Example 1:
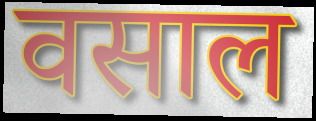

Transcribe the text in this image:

वसाल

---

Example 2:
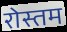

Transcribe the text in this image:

रोस्तम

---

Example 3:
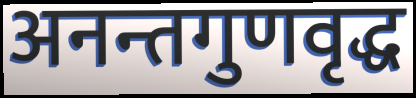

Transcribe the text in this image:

अनन्तगुणवृद्ध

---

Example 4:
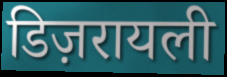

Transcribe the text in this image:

डिज़रायली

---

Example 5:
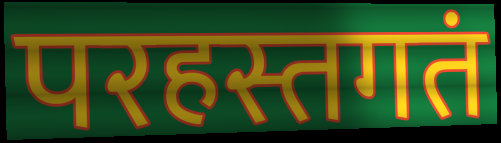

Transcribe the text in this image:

परहस्तगतं